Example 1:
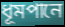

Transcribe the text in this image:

ধূমপানে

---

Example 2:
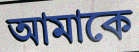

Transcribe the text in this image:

আমাকে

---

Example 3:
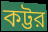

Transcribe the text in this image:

কট্টর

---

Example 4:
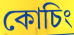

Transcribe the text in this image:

কোচিং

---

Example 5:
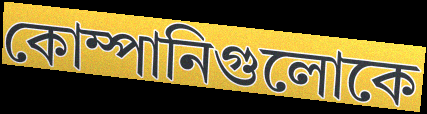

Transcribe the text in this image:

কোম্পানিগুলোকে